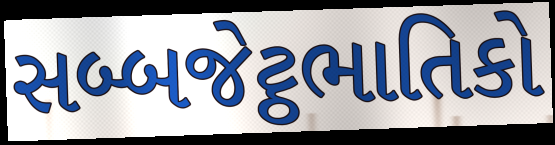
સબ્બજેટ્ઠભાતિકો